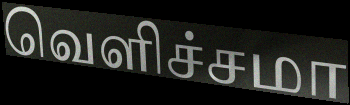
வெளிச்சமா